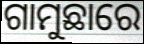
ଗାମୁଛାରେ